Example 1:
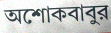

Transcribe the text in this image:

অশোকবাবুর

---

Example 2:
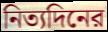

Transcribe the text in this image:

নিত্যদিনের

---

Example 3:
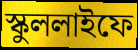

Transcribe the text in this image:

স্কুললাইফে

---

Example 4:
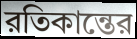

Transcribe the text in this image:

রতিকান্তের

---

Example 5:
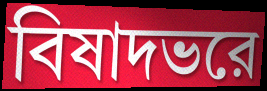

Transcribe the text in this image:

বিষাদভরে